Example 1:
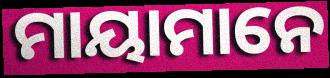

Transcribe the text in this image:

ମାୟାମାନେ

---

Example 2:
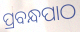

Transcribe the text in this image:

ପ୍ରବନ୍ଧପାଠ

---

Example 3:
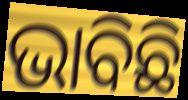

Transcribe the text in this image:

ଭାବିଛି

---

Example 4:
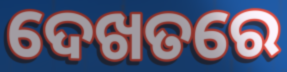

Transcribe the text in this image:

ଦେଖତରେ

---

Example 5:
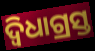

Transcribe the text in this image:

ଦ୍ୱିଧାଗ୍ରସ୍ତ